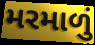
મરમાળું